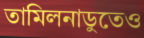
তামিলনাডুতেও